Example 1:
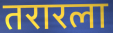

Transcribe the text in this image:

तरारला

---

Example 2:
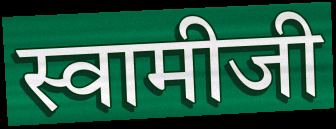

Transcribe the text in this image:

स्वामीजी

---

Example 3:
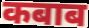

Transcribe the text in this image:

कबाब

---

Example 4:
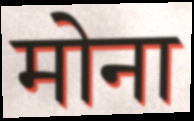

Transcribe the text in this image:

मोना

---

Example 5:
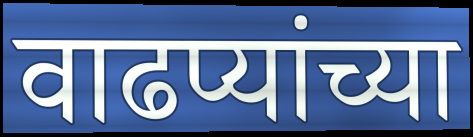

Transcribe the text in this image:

वाढप्यांच्या